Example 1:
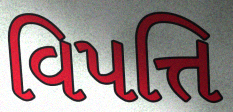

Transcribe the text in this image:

વિપત્તિ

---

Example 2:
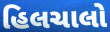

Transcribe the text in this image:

હિલચાલો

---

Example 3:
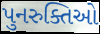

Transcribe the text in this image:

પુનરુક્તિઓ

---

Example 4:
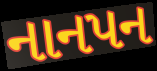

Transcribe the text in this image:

નાનપન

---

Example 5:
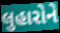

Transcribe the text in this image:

લુહારોને